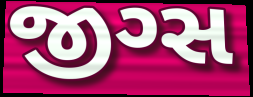
જીગ્સ